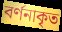
বর্ণনাকৃত